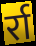
र्रा